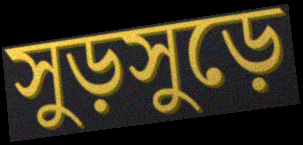
সুড়সুড়ে